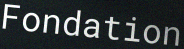
Fondation